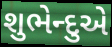
શુભેન્દુએ